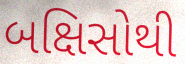
બક્ષિસોથી